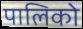
पालिको